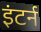
इंटर्न